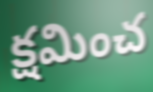
క్షమించ